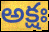
అక్షః